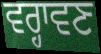
ਵਰ੍ਹਾਵਣ